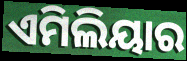
ଏମିଲିୟାର